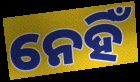
ନେହିଁ